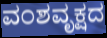
ವಂಶವೃಕ್ಷದ